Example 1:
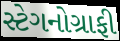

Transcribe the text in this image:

સ્ટેગનોગ્રાફી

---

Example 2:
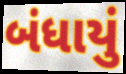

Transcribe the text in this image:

બંધાયું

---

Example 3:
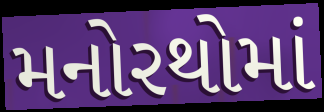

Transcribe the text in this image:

મનોરથોમાં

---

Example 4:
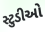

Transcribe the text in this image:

સ્ટુડીઓ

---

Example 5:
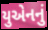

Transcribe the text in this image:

યુએનનું